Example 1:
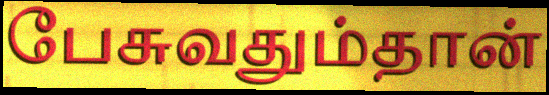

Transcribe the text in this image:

பேசுவதும்தான்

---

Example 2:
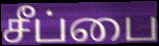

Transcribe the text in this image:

சீப்பை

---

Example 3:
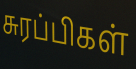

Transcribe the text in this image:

சுரப்பிகள்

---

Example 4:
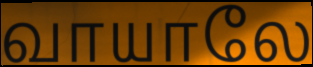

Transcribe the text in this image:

வாயாலே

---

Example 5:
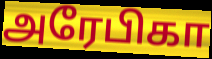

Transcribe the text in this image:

அரேபிகா